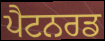
ਪੈਟਨਰਡ